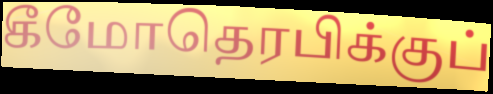
கீமோதெரபிக்குப்